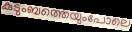
കുടുംബത്തെയുംപോലെ